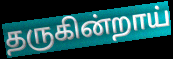
தருகின்றாய்